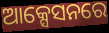
ଆକ୍ସେସନରେ